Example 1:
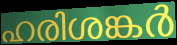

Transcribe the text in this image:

ഹരിശങ്കർ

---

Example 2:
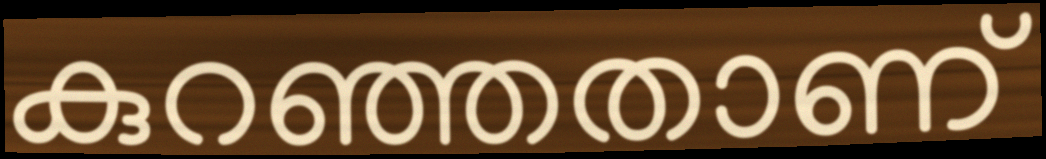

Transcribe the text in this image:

കുറഞ്ഞതാണ്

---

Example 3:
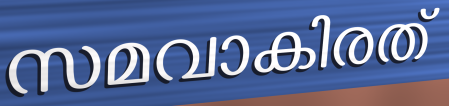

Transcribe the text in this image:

സമവാകിരത്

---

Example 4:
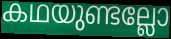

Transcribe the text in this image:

കഥയുണ്ടല്ലോ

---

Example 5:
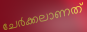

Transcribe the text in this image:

ചേർക്കലാണത്